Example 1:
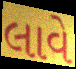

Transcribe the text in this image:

લાવે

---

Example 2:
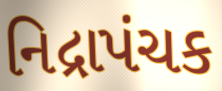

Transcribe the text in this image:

નિદ્રાપંચક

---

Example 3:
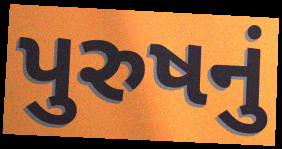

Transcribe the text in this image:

પુરુષનું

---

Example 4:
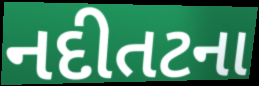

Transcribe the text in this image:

નદીતટના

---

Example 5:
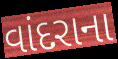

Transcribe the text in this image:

વાંદરાના